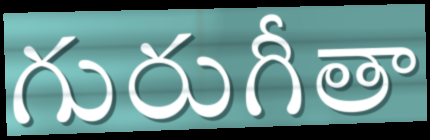
గురుగీతా